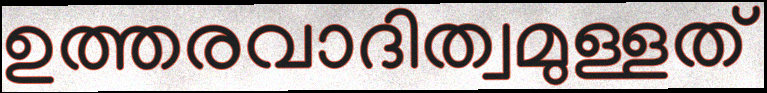
ഉത്തരവാദിത്വമുള്ളത്